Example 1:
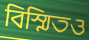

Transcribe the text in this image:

বিস্মিতও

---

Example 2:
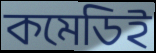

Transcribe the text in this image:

কমেডিই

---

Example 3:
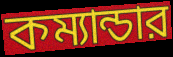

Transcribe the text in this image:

কম্যান্ডার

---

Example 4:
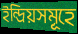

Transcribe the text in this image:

ইন্দ্রিয়সমূহে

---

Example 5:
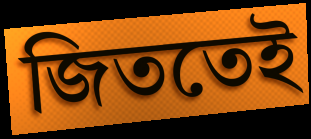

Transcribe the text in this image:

জিততেই